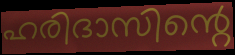
ഹരിദാസിന്റെ